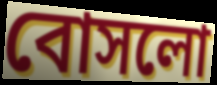
বোসলো